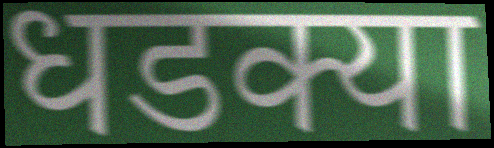
धडक्या